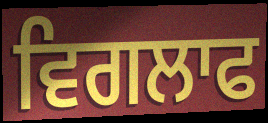
ਵਿਗਲਾਫ